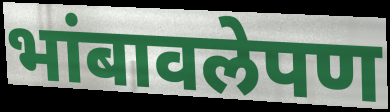
भांबावलेपण